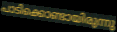
പാടിക്കൊണ്ടായിരുന്നു